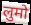
लुमो